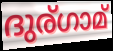
ദുര്ഗാമ്